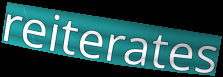
reiterates